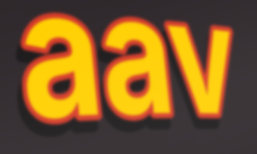
aav